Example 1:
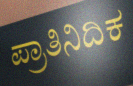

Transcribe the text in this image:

ಪ್ರಾತಿನಿದಿಕ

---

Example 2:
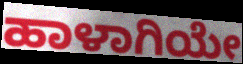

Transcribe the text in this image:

ಹಾಳಾಗಿಯೇ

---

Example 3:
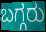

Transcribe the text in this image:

ಬಗ್ಗರು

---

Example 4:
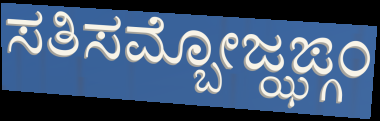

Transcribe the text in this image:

ಸತಿಸಮ್ಬೋಜ್ಝಙ್ಗಂ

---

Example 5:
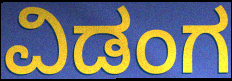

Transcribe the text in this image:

ವಿಡಂಗ